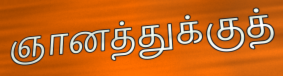
ஞானத்துக்குத்